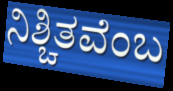
ನಿಶ್ಚಿತವೆಂಬ